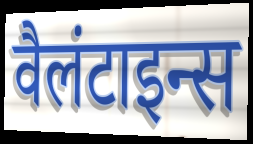
वैलंटाइन्स